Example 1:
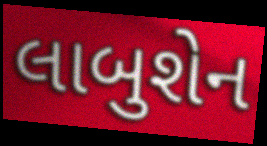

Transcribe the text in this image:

લાબુશેન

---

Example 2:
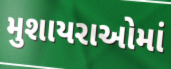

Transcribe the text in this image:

મુશાયરાઓમાં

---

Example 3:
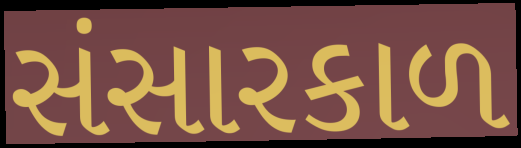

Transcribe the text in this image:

સંસારકાળ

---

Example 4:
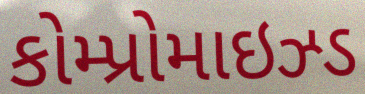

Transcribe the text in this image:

કોમ્પ્રોમાઇઝ્ડ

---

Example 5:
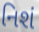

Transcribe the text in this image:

નિશં